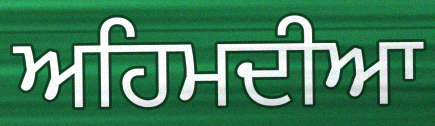
ਅਹਿਮਦੀਆ